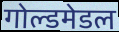
गोल्डमेडल